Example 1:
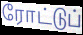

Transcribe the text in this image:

ரோட்டுப்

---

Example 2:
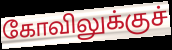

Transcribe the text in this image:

கோவிலுக்குச்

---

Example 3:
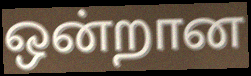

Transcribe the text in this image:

ஒன்றான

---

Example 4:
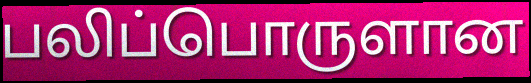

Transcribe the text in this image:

பலிப்பொருளான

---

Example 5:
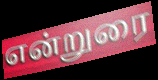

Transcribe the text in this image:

என்றுரை